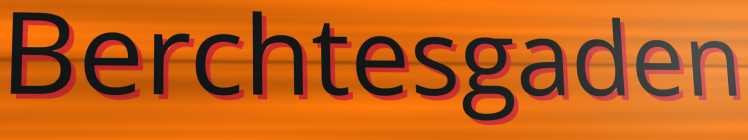
Berchtesgaden